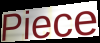
Piece